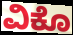
ವಿಕೊ